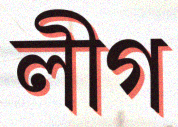
লীগ